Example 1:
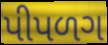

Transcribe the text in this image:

પીપળગ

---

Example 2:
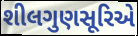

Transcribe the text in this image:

શીલગુણસૂરિએ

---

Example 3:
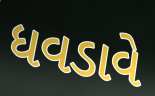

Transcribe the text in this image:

ધવડાવે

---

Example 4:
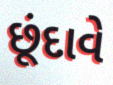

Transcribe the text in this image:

છૂંદાવે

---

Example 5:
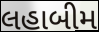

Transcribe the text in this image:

લહાબીમ